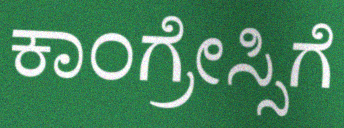
ಕಾಂಗ್ರೇಸ್ಸಿಗೆ